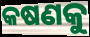
କଷଣକୁ